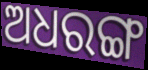
ଅଧରଙ୍ଗ